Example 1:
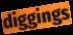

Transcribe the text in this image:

diggings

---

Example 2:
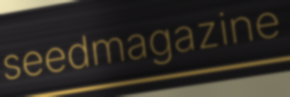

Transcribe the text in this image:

seedmagazine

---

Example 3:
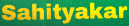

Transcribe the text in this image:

Sahityakar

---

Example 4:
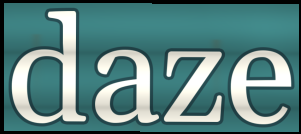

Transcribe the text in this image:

daze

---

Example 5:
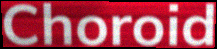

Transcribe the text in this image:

Choroid